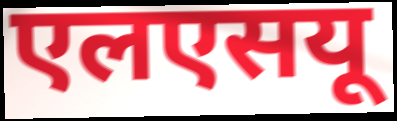
एलएसयू